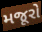
મજૂરો